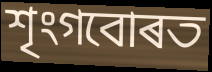
শৃংগবোৰত